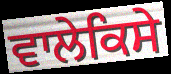
ਵਾਲੇਕਿਸੇ